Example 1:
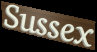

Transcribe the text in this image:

Sussex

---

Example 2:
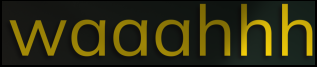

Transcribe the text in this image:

waaahhh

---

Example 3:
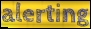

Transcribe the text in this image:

alerting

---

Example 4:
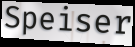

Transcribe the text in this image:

Speiser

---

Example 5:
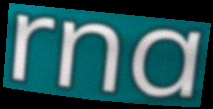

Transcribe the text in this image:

rna